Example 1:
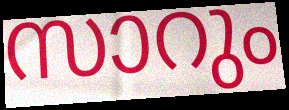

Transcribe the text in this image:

സാറും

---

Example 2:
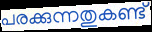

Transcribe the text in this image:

പരക്കുന്നതുകണ്ട്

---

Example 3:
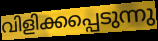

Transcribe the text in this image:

വിളിക്കപ്പെടുന്നു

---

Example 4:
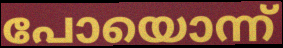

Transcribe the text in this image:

പോയൊന്ന്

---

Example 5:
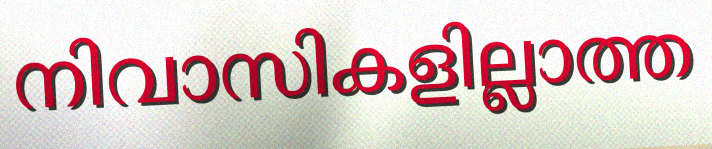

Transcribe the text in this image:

നിവാസികളില്ലാത്ത